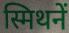
स्मिथनें